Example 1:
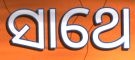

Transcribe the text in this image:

ସାଥେ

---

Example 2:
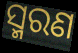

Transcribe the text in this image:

ସ୍ମରଣ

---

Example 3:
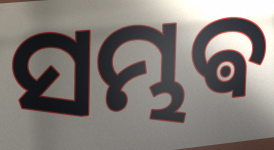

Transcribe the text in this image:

ସମ୍ଭଵ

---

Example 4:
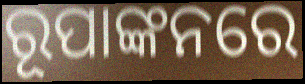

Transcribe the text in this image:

ରୂପାଙ୍କନରେ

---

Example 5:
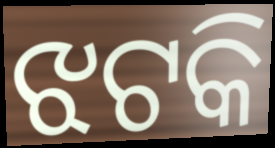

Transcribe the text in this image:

ଝଟକି